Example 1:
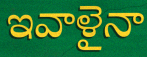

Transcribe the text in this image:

ఇవాళైనా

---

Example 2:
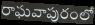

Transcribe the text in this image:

రాఘవాపురంలో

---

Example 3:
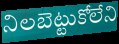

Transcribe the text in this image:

నిలబెట్టుకోలేని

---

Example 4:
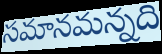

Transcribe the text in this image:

సమానమన్నది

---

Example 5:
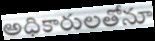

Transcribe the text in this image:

అధికారులతోనూ